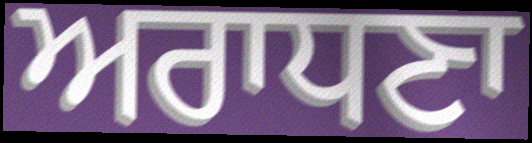
ਅਰਾਧਣਾ